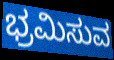
ಭ್ರಮಿಸುವ